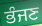
ਭੰਜਣ